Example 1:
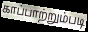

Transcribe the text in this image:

காப்பாற்றும்படி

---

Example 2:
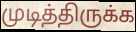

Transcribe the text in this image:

முடித்திருக்க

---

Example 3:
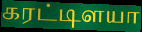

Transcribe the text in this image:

கரட்டிளயா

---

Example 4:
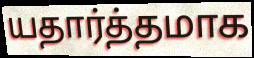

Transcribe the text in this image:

யதார்த்தமாக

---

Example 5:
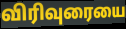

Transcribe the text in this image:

விரிவுரையை